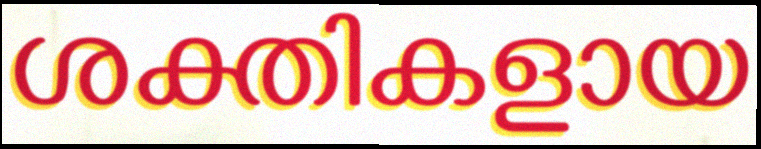
ശക്തികളായ